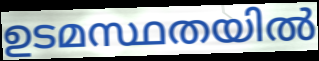
ഉടമസ്ഥതയിൽ